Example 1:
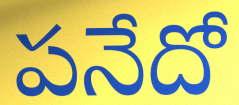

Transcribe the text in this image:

పనేదో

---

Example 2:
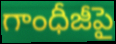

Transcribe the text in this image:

గాంధీజీపై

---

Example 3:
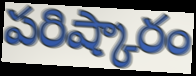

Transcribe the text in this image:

పరిష్కారం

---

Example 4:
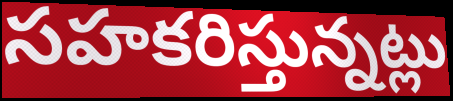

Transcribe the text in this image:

సహకరిస్తున్నట్లు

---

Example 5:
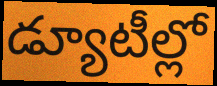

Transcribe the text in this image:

డ్యూటీల్లో